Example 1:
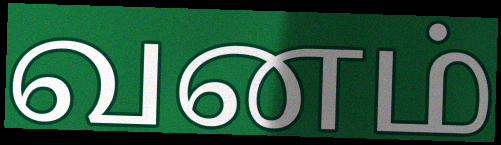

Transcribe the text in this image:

வனம்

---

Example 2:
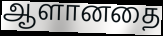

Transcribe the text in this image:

ஆளானதை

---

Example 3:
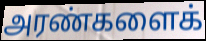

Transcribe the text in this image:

அரண்களைக்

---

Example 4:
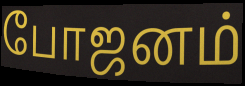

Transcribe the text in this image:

போஜனம்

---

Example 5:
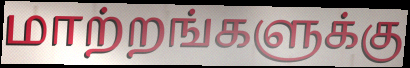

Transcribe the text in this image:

மாற்றங்களுக்கு